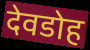
देवडोह